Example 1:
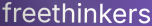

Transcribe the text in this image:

freethinkers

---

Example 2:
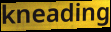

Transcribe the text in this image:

kneading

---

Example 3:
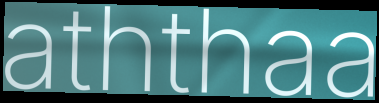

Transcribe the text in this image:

aththaa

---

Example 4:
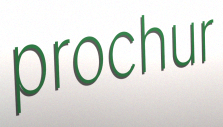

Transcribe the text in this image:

prochur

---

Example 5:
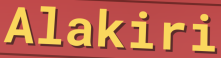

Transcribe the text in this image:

Alakiri